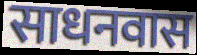
साधनवास